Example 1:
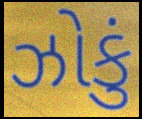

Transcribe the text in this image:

ઝોકું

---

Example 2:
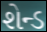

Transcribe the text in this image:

શેન્ડ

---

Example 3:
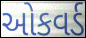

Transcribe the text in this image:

ઓકવર્ડ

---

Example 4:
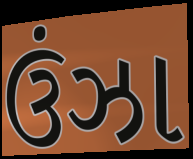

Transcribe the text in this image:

ઉંઝા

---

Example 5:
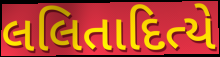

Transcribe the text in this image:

લલિતાદિત્યે